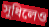
সুধিলেও